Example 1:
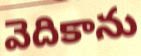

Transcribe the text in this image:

వెదికాను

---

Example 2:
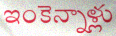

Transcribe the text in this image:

ఇంకెన్నాళ్లు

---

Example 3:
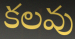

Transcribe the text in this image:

కలవు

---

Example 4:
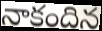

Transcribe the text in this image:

నాకందిన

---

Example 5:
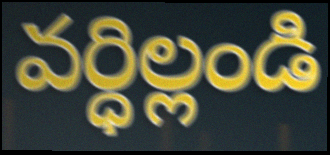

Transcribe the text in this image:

వర్ధిల్లండి